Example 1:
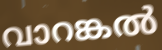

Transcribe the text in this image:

വാറങ്കൽ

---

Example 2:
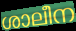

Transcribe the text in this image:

ശാലീന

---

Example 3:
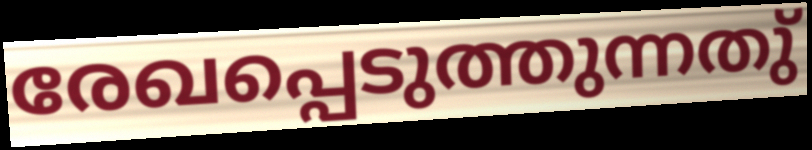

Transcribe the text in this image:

രേഖപ്പെടുത്തുന്നതു്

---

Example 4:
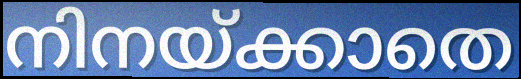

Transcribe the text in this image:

നിനയ്ക്കാതെ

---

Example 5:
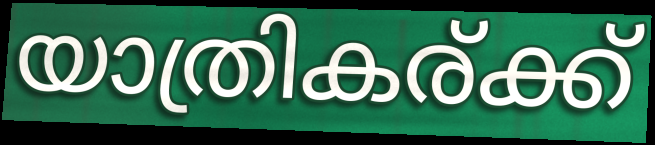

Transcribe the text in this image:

യാത്രികര്ക്ക്